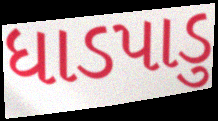
ધાડપાડુ